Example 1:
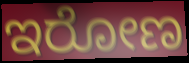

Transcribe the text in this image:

ಇರೋಣ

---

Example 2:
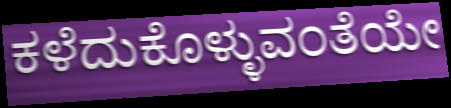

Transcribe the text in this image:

ಕಳೆದುಕೊಳ್ಳುವಂತೆಯೇ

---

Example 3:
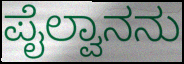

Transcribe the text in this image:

ಪೈಲ್ವಾನನು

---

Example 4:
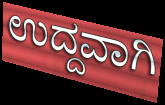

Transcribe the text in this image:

ಉದ್ದವಾಗಿ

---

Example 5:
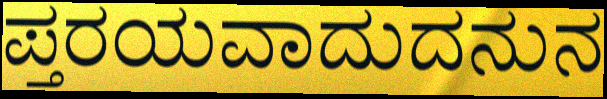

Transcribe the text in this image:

ಪ್ತರಯವಾದುದನುನ